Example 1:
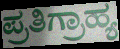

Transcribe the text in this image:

ಪ್ರತಿಗ್ರಾಹ್ಯ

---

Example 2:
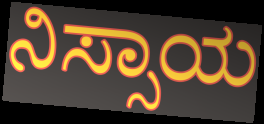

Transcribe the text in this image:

ನಿಸ್ಸಾಯ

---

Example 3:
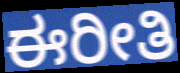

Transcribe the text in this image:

ಈರೀತಿ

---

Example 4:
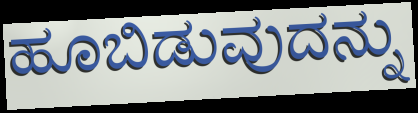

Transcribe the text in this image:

ಹೂಬಿಡುವುದನ್ನು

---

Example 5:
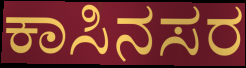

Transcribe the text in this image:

ಕಾಸಿನಸರ